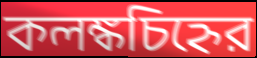
কলঙ্কচিহ্নের